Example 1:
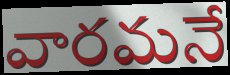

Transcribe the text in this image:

వారమనే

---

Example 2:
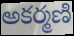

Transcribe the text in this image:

అకర్మణి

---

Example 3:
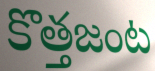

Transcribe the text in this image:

కొత్తజంట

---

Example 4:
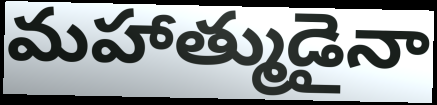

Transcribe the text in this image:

మహాత్ముడైనా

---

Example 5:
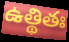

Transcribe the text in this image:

ఉత్థితః